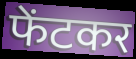
फेंटकर